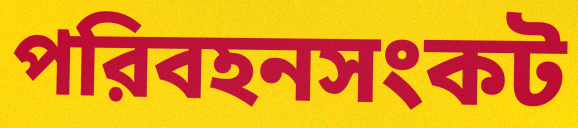
পরিবহনসংকট